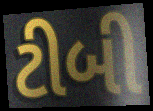
ટીબી